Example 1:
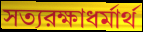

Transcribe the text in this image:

সত্যরক্ষাধর্মার্থ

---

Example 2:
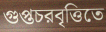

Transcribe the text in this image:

গুপ্তচরবৃত্তিতে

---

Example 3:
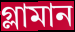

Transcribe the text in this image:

গ্লামান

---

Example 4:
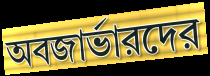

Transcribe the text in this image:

অবজার্ভারদের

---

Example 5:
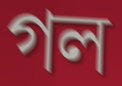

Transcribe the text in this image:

গল